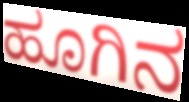
ಹೂಗಿನ